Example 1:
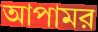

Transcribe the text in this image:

আপামর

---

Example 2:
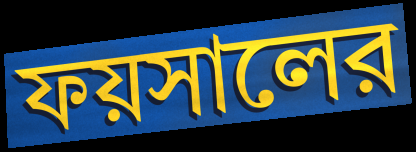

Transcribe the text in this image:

ফয়সালের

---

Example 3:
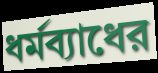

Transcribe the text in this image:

ধর্মব্যাধের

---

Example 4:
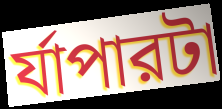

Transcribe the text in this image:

র্যাপারটা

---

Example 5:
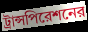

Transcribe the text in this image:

ট্রান্সপিরেশনের